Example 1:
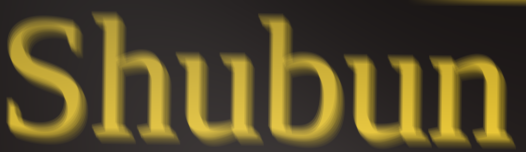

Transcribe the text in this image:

Shubun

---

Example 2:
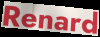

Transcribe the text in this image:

Renard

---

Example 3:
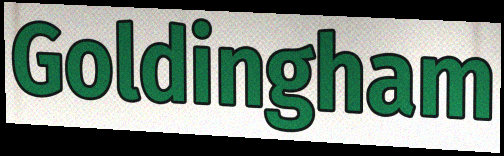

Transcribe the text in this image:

Goldingham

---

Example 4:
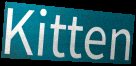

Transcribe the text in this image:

Kitten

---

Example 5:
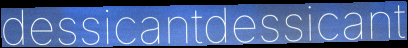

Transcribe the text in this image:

dessicantdessicant